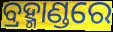
ବ୍ରହ୍ମାଣ୍ଡରେ